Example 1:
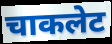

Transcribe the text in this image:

चाकलेट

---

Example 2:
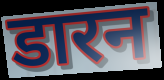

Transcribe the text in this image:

डारन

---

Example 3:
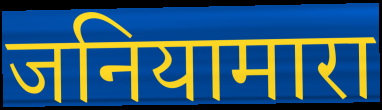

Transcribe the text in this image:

जनियामारा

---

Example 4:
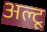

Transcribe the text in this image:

अल्टू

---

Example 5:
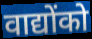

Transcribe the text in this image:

वाद्योंको